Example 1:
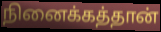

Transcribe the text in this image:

நினைக்கத்தான்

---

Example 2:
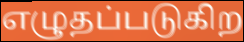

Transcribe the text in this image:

எழுதப்படுகிற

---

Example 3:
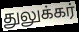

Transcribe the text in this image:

துலுக்கர்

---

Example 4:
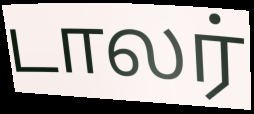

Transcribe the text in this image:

டாலர்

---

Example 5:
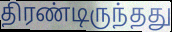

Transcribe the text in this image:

திரண்டிருந்தது